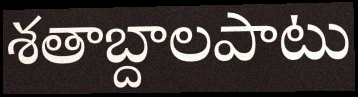
శతాబ్దాలపాటు